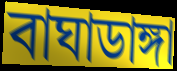
বাঘাডাঙ্গা